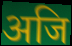
अजि